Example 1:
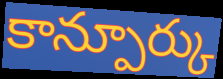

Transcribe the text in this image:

కాన్పూర్కు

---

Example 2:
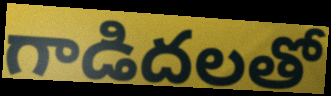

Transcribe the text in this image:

గాడిదలతో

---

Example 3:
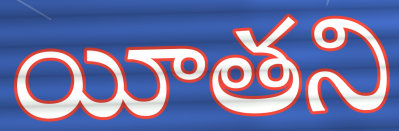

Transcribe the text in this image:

యీతని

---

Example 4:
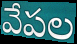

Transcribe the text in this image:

వేపల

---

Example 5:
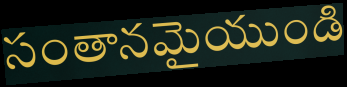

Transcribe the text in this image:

సంతానమైయుండి